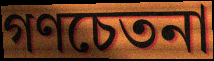
গণচেতনা